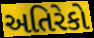
અતિરેકો